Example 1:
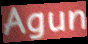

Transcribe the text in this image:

Agun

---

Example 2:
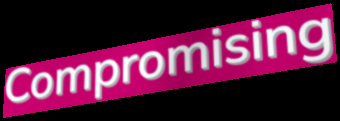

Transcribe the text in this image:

Compromising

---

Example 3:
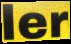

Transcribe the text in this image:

ler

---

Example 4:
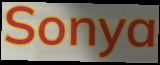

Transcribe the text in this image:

Sonya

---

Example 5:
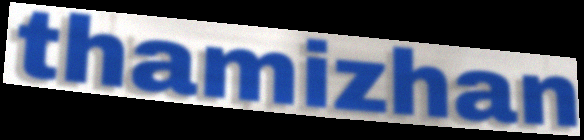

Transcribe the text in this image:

thamizhan